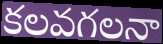
కలవగలనా